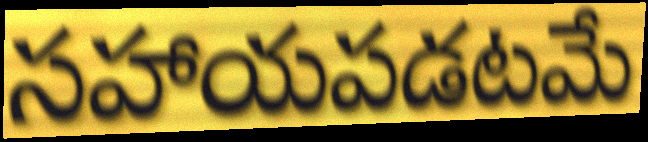
సహాయపడటమే